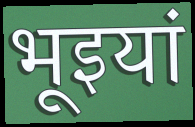
भूइयां